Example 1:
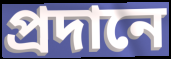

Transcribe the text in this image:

প্রদানে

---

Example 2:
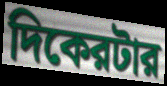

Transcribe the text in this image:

দিকেরটার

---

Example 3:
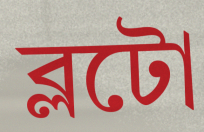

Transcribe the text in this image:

ব্লটো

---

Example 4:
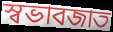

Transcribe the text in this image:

স্বভাবজাত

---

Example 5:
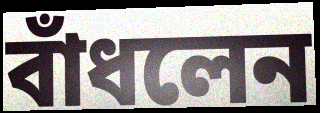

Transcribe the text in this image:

বাঁধলেন